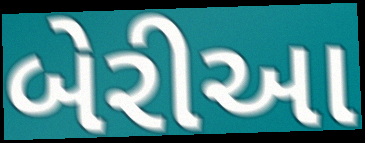
બેરીઆ